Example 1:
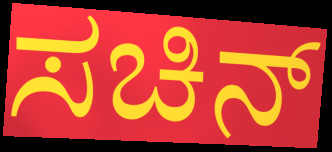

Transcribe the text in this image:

ಸಚಿನ್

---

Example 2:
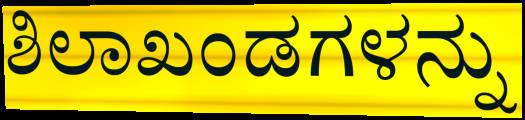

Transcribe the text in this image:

ಶಿಲಾಖಂಡಗಳನ್ನು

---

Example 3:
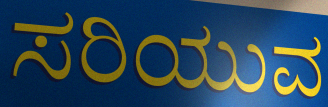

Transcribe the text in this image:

ಸರಿಯುವ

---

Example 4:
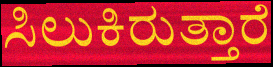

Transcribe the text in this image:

ಸಿಲುಕಿರುತ್ತಾರೆ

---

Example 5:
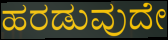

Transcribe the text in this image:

ಹರಡುವುದೇ